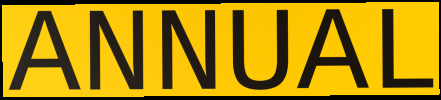
ANNUAL